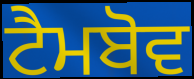
ਟੈਮਬੋਵ